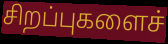
சிறப்புகளைச்